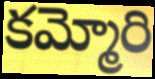
కమ్మోరి